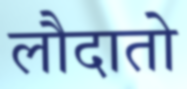
लौदातो